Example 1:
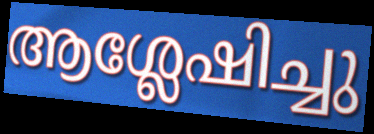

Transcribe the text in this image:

ആശ്ലേഷിച്ചു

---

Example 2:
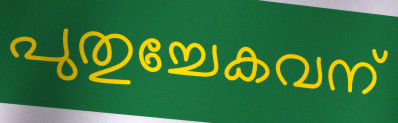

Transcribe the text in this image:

പുതുച്ചേകവന്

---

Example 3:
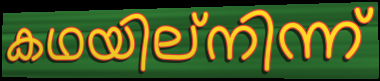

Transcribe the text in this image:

കഥയില്നിന്ന്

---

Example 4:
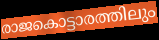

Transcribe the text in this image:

രാജകൊട്ടാരത്തിലും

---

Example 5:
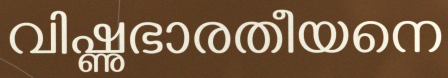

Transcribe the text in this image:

വിഷ്ണുഭാരതീയനെ